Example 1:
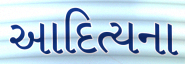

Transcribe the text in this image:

આદિત્યના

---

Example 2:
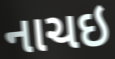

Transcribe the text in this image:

નાચઇ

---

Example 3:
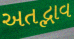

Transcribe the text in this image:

અતદ્ભાવ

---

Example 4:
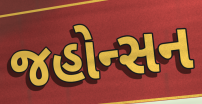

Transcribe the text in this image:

જહોન્સન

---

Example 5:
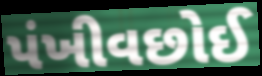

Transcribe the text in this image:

પંખીવછોઈ